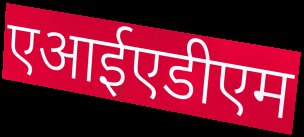
एआईएडीएम